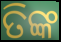
ତିଙ୍କ